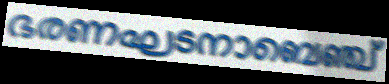
ഭരണഘടനാബെഞ്ച്